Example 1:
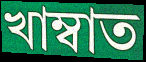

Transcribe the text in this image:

খাম্বাত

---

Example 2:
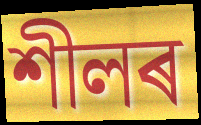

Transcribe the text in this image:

শীলৰ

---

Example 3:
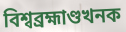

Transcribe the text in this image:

বিশ্বব্ৰহ্মাণ্ডখনক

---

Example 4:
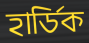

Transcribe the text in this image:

হাৰ্ডিক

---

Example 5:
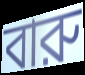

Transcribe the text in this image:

বাৰু